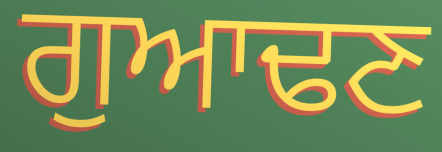
ਗੁਆਢਣ